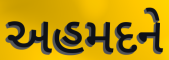
અહમદને